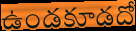
ఉండకూడదో